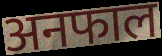
अनफाल